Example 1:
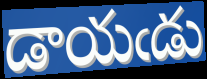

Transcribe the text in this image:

డాయఁడు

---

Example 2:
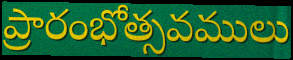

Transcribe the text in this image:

ప్రారంభోత్సవములు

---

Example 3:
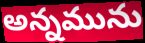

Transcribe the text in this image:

అన్నమును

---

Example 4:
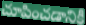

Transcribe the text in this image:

చూపించడానికీ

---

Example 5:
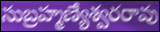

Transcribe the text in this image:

సుబ్రహ్మణ్యేశ్వరరావు